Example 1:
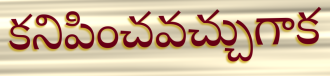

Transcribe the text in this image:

కనిపించవచ్చుగాక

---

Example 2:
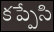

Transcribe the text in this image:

కప్పేసి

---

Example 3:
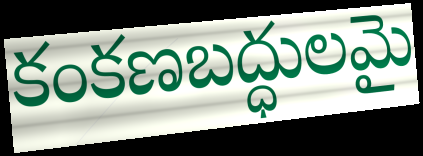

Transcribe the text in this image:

కంకణబద్ధులమై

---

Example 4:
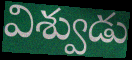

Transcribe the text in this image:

విశ్వుడు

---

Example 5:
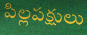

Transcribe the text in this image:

పిల్లపక్షులు